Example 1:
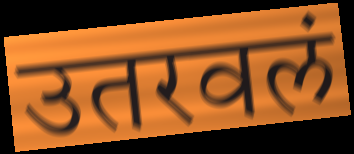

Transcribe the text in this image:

उतरवलं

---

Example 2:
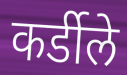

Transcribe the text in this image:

कर्डीले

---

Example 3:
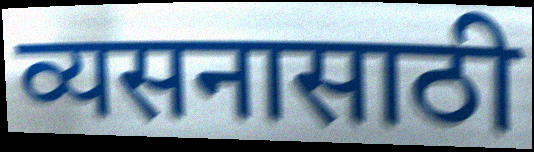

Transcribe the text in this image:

व्यसनासाठी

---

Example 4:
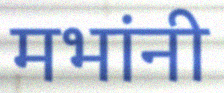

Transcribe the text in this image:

मभांनी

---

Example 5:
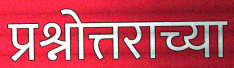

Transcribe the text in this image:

प्रश्नोत्तराच्या